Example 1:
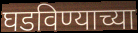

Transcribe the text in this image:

घडविण्याच्या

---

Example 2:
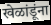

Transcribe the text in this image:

खेळांडूंना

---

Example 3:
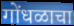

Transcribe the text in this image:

गोंधळाचा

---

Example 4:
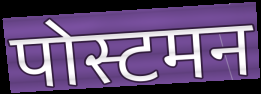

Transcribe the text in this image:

पोस्टमन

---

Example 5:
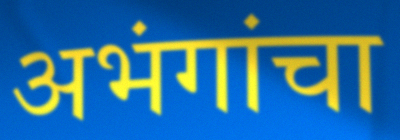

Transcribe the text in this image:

अभंगांचा